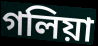
গলিয়া